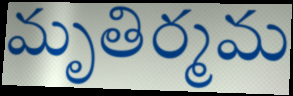
మృతిర్మమ